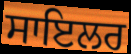
ਸਾਇਲਰ